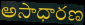
అసాధారణ